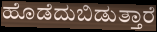
ಹೊಡೆದುಬಿಡುತ್ತಾರೆ